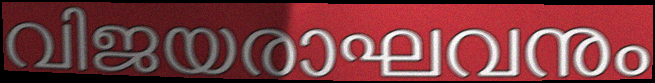
വിജയരാഘവനും